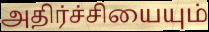
அதிர்ச்சியையும்